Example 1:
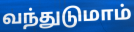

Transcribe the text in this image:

வந்துடுமாம்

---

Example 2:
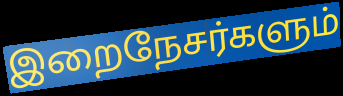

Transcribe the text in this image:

இறைநேசர்களும்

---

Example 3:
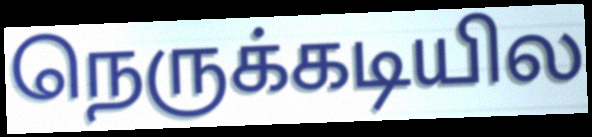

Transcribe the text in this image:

நெருக்கடியில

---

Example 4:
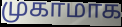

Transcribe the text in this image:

முகாமாக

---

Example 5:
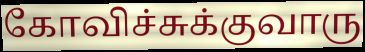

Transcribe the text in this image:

கோவிச்சுக்குவாரு